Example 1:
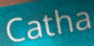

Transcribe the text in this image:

Catha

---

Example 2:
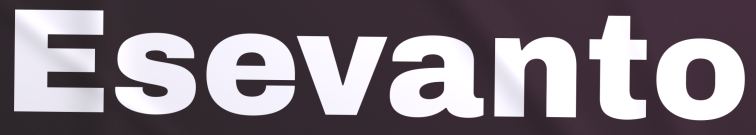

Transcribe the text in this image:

Esevanto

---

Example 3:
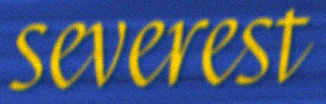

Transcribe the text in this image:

severest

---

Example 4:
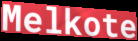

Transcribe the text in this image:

Melkote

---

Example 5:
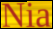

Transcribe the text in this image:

Nia